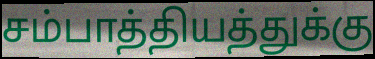
சம்பாத்தியத்துக்கு